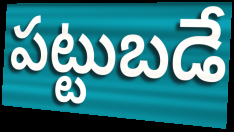
పట్టుబడే